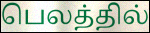
பெலத்தில்